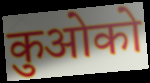
कुओको